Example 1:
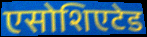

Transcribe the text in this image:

एसोशिएटेड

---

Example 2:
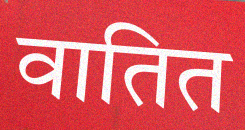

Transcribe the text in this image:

वातित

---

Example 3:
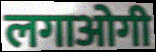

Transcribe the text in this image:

लगाओगी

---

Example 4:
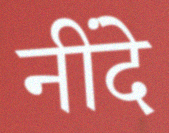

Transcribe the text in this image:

नींदे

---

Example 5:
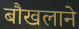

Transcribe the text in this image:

बौखलाने